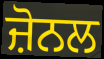
ਜ਼ੋਨਲ